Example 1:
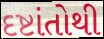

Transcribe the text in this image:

દષ્ટાંતોથી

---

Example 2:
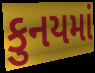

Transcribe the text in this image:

કુનયમાં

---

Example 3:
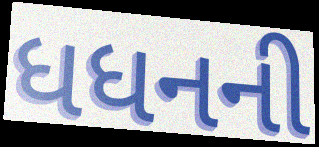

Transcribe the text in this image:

ધધનની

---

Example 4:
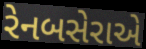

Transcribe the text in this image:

રેનબસેરાએ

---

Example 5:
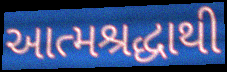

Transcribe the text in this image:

આત્મશ્રદ્ધાથી